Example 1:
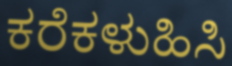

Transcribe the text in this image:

ಕರೆಕಳುಹಿಸಿ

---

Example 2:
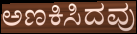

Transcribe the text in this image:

ಅಣಕಿಸಿದವು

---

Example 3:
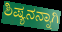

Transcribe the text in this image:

ಶಿಷ್ಯನನ್ನಾಗಿ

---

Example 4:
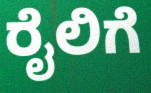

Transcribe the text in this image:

ರೈಲಿಗೆ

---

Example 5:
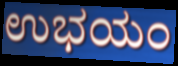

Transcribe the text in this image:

ಉಭಯಂ